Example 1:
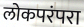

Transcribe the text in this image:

लोकपरंपरा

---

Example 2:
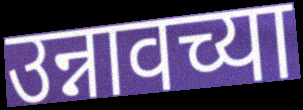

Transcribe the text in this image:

उन्नावच्या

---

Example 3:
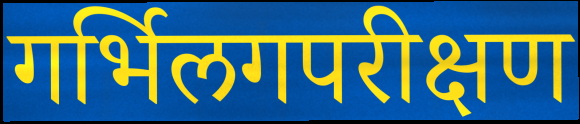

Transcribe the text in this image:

गर्भिलगपरीक्षण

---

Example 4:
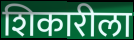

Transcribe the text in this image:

शिकारीला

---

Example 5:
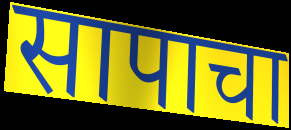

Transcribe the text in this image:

सापाचा